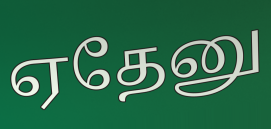
ஏதேனு